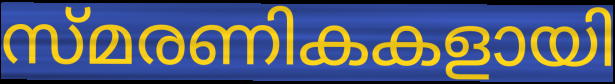
സ്മരണികകളായി